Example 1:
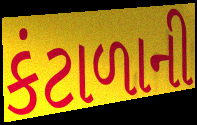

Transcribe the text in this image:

કંટાળાની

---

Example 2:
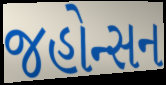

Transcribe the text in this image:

જહોન્સન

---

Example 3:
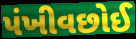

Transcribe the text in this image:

પંખીવછોઈ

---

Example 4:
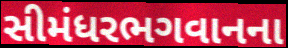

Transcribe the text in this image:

સીમંધરભગવાનના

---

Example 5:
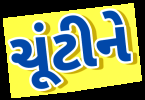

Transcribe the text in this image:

ચૂંટીને